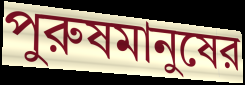
পুরুষমানুষের